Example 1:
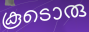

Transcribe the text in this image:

കൂടൊരു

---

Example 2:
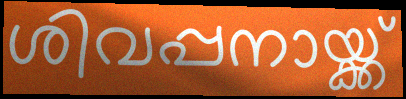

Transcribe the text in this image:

ശിവപ്പനായ്ക്ക്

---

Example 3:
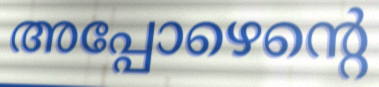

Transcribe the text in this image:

അപ്പോഴെന്റെ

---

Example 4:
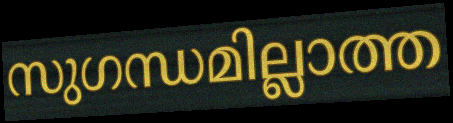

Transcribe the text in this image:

സുഗന്ധമില്ലാത്ത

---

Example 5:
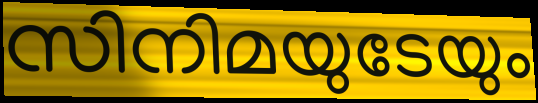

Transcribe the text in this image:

സിനിമയുടേയും